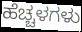
ಹೆಚ್ಚಳಗಳು